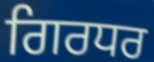
ਗਿਰਧਰ